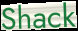
Shack